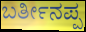
ಬರ್ತೀನಪ್ಪ